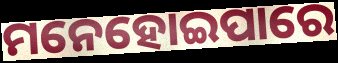
ମନେହୋଇପାରେ